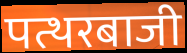
पत्थरबाजी